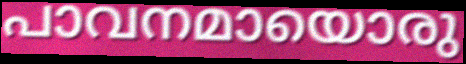
പാവനമായൊരു